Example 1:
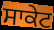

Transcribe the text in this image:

ਸਾਕੇਟ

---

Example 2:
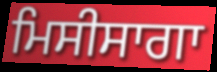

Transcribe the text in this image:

ਮਿਸੀਸਾਗਾ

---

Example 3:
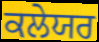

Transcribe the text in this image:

ਕਲੇਯਰ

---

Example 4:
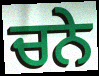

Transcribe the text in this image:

ਚਨੇ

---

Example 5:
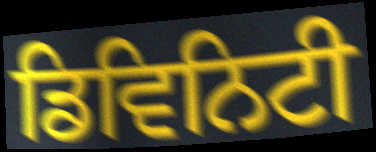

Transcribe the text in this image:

ਡਿਵਿਨਿਟੀ